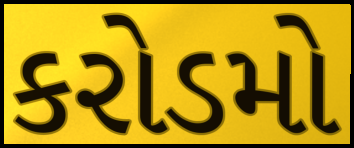
કરોડમો